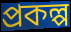
প্রকল্প